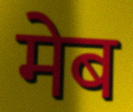
मेब